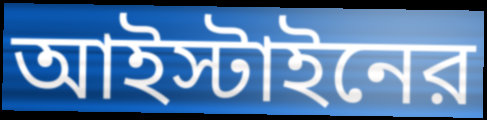
আইস্টাইনের